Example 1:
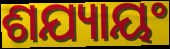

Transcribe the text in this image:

ଶଯ୍ୟାୟଂ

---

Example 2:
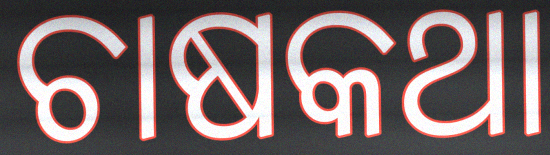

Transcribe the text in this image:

ଚାଷକଥା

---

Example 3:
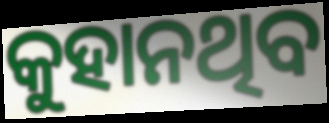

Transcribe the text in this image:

କୁହାନଥିବ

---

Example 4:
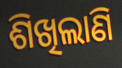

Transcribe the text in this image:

ଶିଖିଲାଣି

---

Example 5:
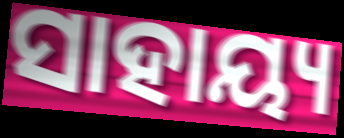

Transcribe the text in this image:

ସାହାୟ୍ୟ